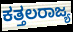
ಕತ್ತಲರಾಜ್ಯ